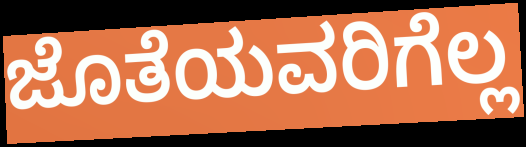
ಜೊತೆಯವರಿಗೆಲ್ಲ